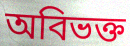
অবিভক্ত